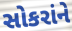
સોકરાંને